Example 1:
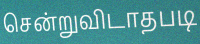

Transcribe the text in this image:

சென்றுவிடாதபடி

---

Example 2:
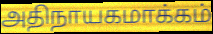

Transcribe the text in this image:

அதிநாயகமாக்கம்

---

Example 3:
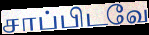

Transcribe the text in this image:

சாப்பிடவே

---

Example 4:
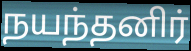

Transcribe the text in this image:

நயந்தனிர்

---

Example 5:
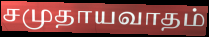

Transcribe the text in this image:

சமுதாயவாதம்